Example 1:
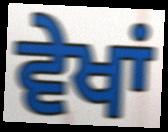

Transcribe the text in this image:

ਵੇਖਾਂ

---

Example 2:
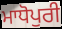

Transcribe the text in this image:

ਮਾਧੋਪੁਰੀ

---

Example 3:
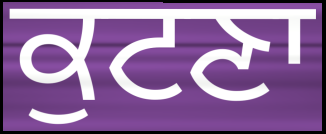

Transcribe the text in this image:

ਕੁਟਣਾ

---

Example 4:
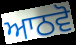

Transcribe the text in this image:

ਆਠਵੋ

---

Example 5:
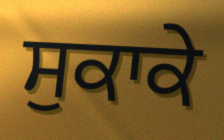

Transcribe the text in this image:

ਸੁਕਾਕੇ